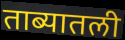
ताब्यातली